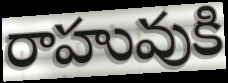
రాహువుకి